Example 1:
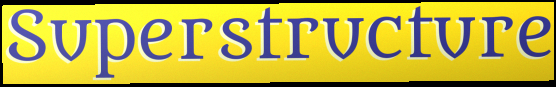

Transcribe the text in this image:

Superstructure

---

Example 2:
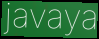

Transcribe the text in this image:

javaya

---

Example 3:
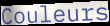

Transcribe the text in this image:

Couleurs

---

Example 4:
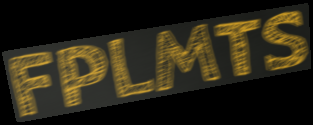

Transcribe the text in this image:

FPLMTS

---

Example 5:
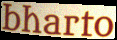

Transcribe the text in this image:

bharto